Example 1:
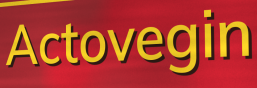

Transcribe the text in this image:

Actovegin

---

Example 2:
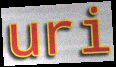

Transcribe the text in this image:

uri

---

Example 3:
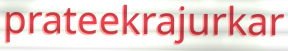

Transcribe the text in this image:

prateekrajurkar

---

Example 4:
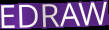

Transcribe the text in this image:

EDRAW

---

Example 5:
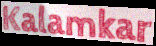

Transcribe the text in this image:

Kalamkar